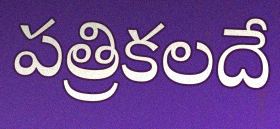
పత్రికలదే